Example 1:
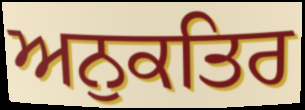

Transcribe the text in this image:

ਅਨੁਕਤਿਰ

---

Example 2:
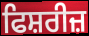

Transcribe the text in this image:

ਫਿਸ਼ਰੀਜ਼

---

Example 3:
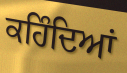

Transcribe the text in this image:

ਕਹਿੰਦਿਆਂ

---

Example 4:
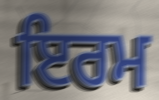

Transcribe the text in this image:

ਇਰਮ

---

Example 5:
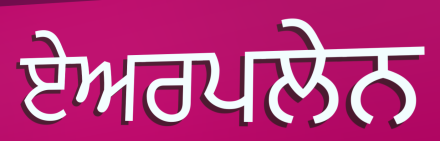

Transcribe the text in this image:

ਏਅਰਪਲੇਨ